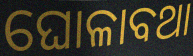
ଘୋଳାବଥା